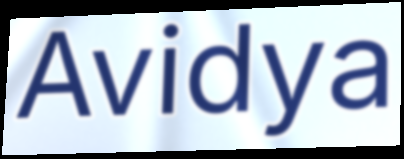
Avidya